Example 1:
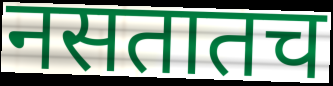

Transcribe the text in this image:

नसतातच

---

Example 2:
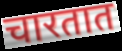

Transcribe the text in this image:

चारतात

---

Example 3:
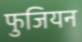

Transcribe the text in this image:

फुजियन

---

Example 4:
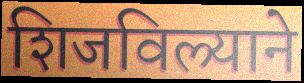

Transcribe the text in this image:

शिजविल्याने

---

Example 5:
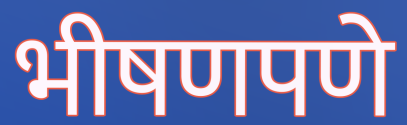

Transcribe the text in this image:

भीषणपणे